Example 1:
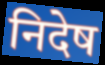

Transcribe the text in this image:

निदेष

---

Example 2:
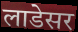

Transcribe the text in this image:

लाडेसर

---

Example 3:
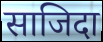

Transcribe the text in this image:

साजिदा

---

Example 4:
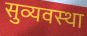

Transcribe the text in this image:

सुव्यवस्था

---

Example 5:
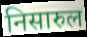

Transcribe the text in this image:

निसारुल